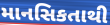
માનસિકતાથી